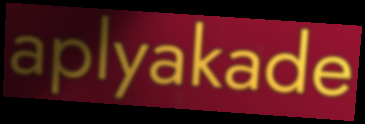
aplyakade